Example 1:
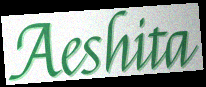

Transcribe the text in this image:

Aeshita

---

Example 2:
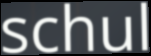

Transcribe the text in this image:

schul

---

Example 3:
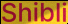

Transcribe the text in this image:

Shibli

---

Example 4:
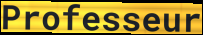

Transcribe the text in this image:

Professeur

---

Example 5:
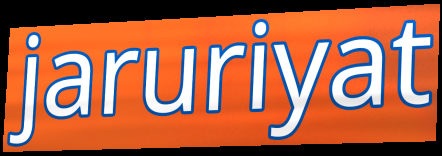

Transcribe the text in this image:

jaruriyat